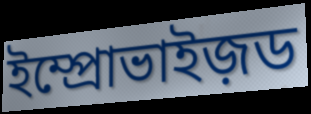
ইম্প্রোভাইজ়ড